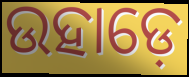
ଉହାଡ଼େ